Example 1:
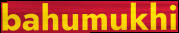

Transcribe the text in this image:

bahumukhi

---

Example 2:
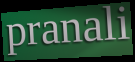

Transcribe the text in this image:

pranali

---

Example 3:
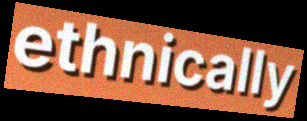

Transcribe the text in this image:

ethnically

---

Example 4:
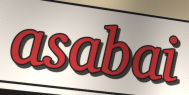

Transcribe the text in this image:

asabai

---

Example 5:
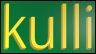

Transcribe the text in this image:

kulli